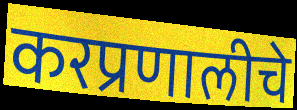
करप्रणालीचे